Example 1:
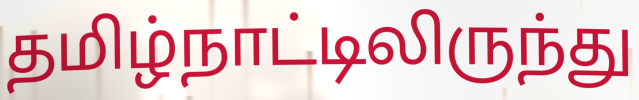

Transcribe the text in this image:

தமிழ்நாட்டிலிருந்து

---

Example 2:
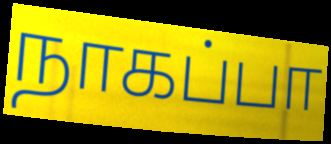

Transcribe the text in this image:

நாகப்பா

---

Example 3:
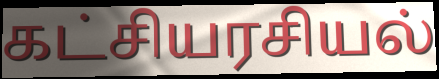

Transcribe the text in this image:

கட்சியரசியல்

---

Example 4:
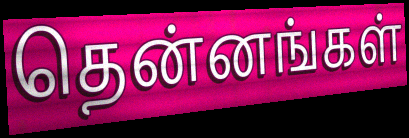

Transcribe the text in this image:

தென்னங்கள்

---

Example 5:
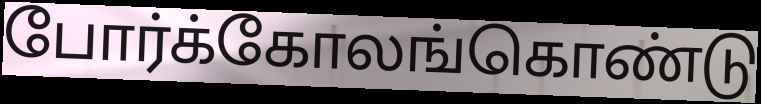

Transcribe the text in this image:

போர்க்கோலங்கொண்டு